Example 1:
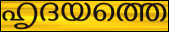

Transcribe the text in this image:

ഹൃദയത്തെ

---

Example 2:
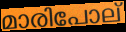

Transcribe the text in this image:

മാരിപോല്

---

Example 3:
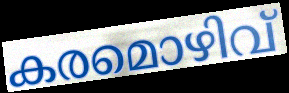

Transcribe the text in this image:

കരമൊഴിവ്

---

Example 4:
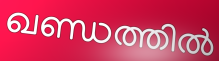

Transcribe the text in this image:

ഖണ്ഡത്തിൽ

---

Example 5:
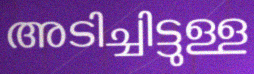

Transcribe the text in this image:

അടിച്ചിട്ടുള്ള